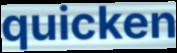
quicken